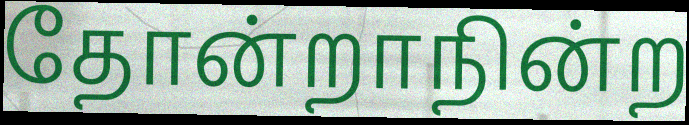
தோன்றாநின்ற